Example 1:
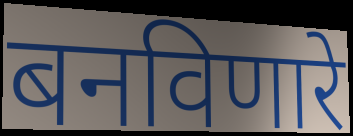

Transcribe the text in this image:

बनविणारे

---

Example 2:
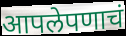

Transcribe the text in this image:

आपलेपणाचं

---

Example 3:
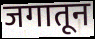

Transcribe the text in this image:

जगातून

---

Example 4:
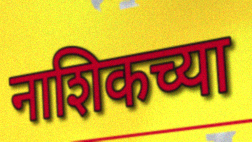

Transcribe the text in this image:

नाशिकच्या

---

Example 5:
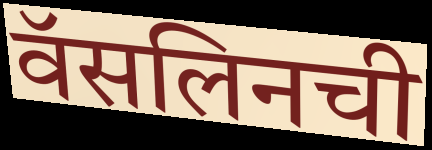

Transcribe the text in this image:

वॅसलिनची